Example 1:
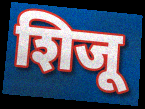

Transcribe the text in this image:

शिजू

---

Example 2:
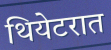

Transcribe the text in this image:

थियेटरात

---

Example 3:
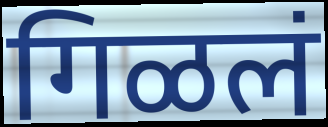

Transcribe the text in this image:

गिळलं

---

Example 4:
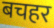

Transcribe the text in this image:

बचहर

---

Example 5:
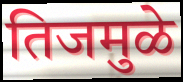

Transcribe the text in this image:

तिजमुळे